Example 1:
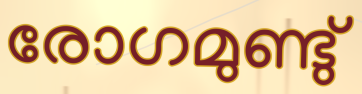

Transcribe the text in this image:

രോഗമുണ്ടു്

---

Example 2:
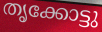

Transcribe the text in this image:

തൃക്കോട്ടു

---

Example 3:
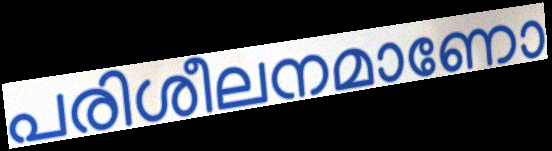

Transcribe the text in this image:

പരിശീലനമാണോ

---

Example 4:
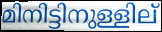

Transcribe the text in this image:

മിനിട്ടിനുള്ളില്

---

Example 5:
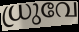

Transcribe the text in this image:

ധ്രുവേ